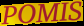
POMIS